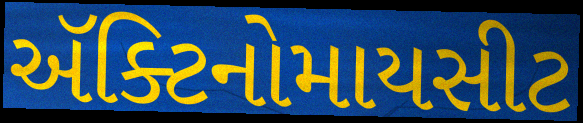
ઍક્ટિનોમાયસીટ